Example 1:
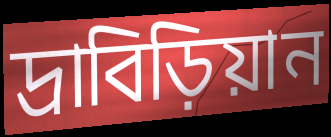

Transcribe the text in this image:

দ্রাবিড়িয়ান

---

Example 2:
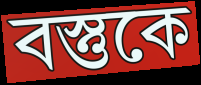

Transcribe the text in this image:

বস্তুকে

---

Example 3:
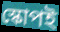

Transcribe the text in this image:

স্কোপই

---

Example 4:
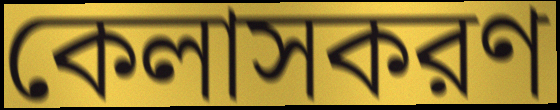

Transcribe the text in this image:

কেলাসকরণ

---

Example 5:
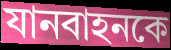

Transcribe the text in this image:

যানবাহনকে